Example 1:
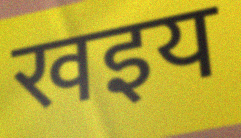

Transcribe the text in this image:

खइय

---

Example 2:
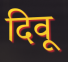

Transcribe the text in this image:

दिवू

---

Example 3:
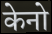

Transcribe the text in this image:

केनो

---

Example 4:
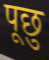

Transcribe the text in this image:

पूछु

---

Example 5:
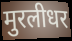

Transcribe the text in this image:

मुरलीधर